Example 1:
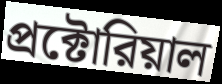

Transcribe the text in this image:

প্রক্টোরিয়াল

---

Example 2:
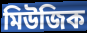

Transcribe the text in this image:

মিউজিক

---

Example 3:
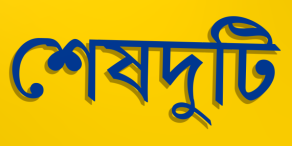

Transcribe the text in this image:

শেষদুটি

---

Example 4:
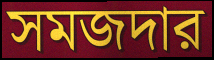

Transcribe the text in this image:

সমজদার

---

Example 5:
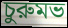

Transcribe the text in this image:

চুরুমভ